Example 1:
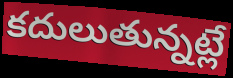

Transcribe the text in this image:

కదులుతున్నట్లే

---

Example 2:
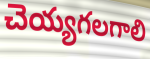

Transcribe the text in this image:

చెయ్యగలగాలి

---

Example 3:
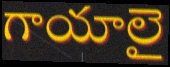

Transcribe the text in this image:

గాయాలై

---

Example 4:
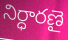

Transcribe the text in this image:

నిర్ధారణై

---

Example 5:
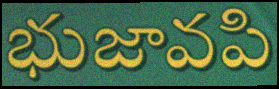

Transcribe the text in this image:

భుజావపి